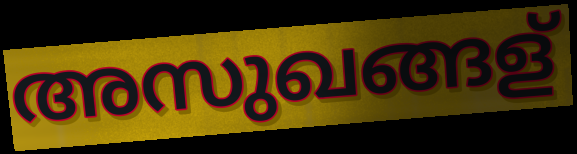
അസുഖങ്ങള്